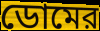
ডোমের